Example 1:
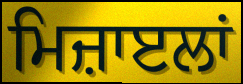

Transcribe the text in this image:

ਮਿਜ਼ਾੲਲਾਂ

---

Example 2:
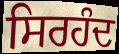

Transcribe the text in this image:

ਸਿਰਹੰਦ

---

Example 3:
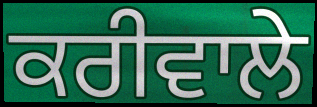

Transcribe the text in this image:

ਕਰੀਵਾਲੇ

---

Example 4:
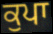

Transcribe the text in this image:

ਕੁਪਾ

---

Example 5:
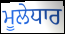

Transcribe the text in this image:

ਮੂਲੇਧਾਰ